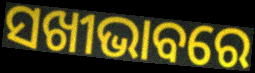
ସଖୀଭାବରେ